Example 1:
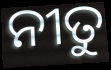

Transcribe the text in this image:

ନୀତୁ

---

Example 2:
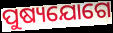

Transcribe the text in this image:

ପୁଷ୍ୟଯୋଗେ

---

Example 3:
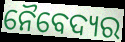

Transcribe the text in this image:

ନୈବେଦ୍ୟର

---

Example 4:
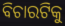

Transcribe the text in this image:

ବିଚାରଟିକୁ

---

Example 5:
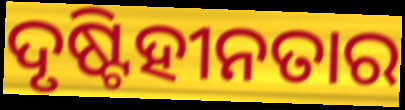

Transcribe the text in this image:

ଦୃଷ୍ଟିହୀନତାର